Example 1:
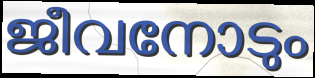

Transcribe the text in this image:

ജീവനോടും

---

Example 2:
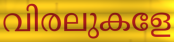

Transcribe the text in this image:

വിരലുകളേ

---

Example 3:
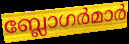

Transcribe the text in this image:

ബ്ലോഗർമാർ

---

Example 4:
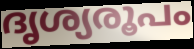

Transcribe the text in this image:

ദൃശ്യരൂപം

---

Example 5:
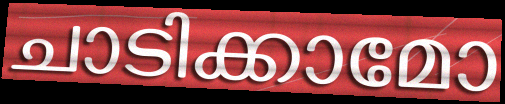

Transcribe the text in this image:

ചാടിക്കാമോ